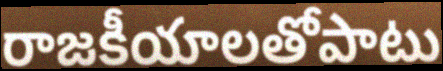
రాజకీయాలతోపాటు